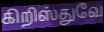
கிறிஸ்துவே